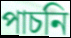
পাচনি